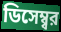
ডিসেম্ব্বর